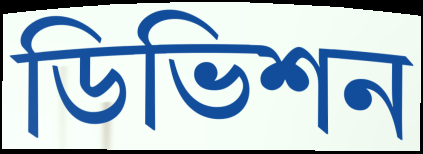
ডিভিশন